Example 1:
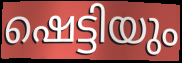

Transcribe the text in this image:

ഷെട്ടിയും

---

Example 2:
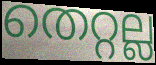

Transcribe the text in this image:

തെറ്റല്ല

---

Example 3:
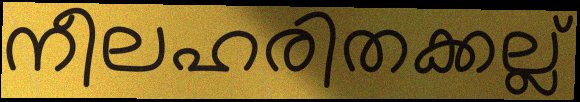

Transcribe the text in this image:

നീലഹരിതക്കല്ല്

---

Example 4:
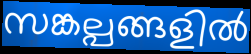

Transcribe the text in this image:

സങ്കല്പങ്ങളിൽ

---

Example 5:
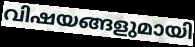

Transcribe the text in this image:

വിഷയങ്ങളുമായി